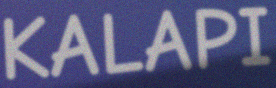
KALAPI